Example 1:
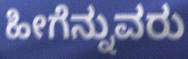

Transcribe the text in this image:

ಹೀಗೆನ್ನುವರು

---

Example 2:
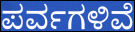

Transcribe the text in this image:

ಪರ್ವಗಳಿವೆ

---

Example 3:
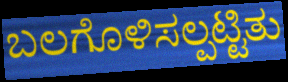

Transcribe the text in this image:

ಬಲಗೊಳಿಸಲ್ಪಟ್ಟಿತು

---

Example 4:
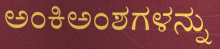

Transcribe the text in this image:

ಅಂಕಿಅಂಶಗಳನ್ನು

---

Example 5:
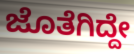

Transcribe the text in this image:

ಜೊತೆಗಿದ್ದೇ